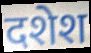
दशेश